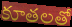
కూతలతో